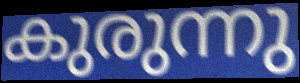
കുരുന്നു